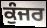
ਕੁੰਜਰ